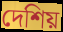
দেশিয়